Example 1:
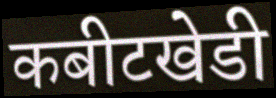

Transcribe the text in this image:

कबीटखेडी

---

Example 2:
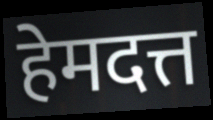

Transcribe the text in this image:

हेमदत्त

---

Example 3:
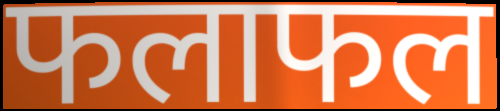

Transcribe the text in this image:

फलाफल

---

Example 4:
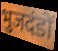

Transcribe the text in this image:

भुजदंडों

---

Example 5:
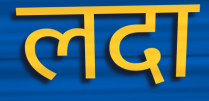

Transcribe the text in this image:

लदा